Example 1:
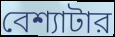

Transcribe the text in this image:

বেশ্যাটার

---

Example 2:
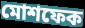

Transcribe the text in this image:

মোশফেক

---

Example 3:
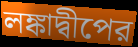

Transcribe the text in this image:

লঙ্কাদ্বীপের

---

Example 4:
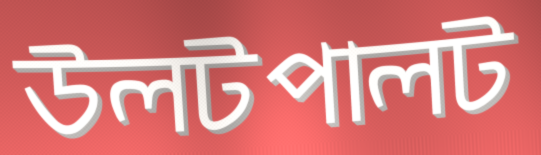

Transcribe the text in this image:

উলটপালট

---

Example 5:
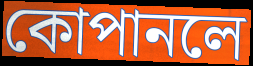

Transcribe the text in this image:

কোপানলে